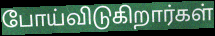
போய்விடுகிறார்கள்